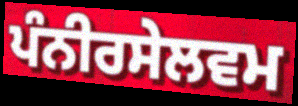
ਪੰਨੀਰਸੇਲਵਮ